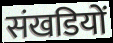
संखडियों